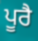
ਪੂਰੈ